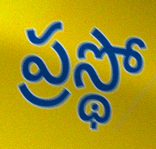
ప్రస్థో